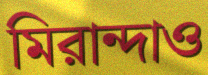
মিরান্দাও